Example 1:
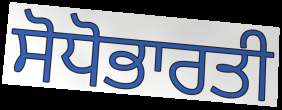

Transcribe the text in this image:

ਸੋਧੋਭਾਰਤੀ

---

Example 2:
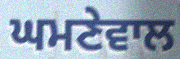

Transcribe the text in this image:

ਘਮਣੇਵਾਲ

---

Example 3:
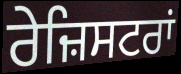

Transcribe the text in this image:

ਰੇਜ਼ਿਸਟਰਾਂ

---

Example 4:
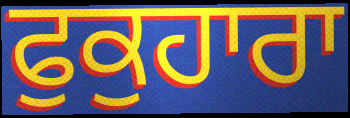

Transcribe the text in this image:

ਫੁਕੁਹਾਰਾ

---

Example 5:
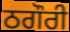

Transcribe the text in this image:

ਠਗੌਰੀ